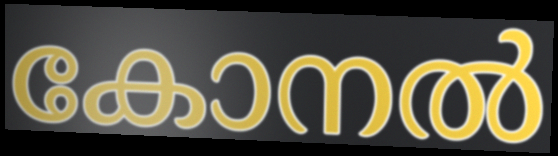
കോനൽ